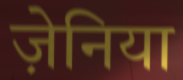
ज़ेनिया